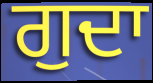
ਗੁਦਾ